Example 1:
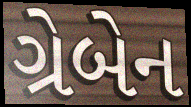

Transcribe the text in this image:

ગ્રેબેન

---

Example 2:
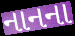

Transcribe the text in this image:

નાનના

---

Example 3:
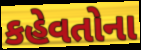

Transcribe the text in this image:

કહેવતોના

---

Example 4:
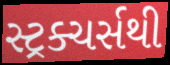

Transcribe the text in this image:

સ્ટ્રક્ચર્સથી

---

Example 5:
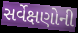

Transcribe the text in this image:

સર્વેક્ષણોની